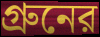
গ্রুনের